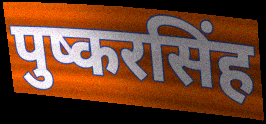
पुष्करसिंह